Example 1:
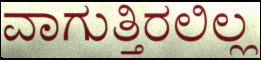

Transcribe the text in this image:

ವಾಗುತ್ತಿರಲಿಲ್ಲ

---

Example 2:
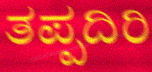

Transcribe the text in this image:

ತಪ್ಪದಿರಿ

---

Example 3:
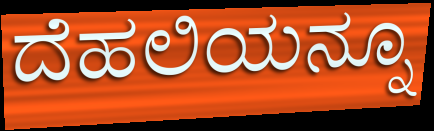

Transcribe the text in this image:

ದೆಹಲಿಯನ್ನೂ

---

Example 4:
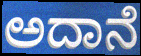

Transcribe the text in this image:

ಅದಾನೆ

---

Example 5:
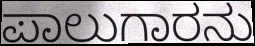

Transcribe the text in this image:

ಪಾಲುಗಾರನು